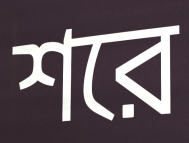
শরে